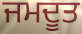
ਜਮਦੂਤ